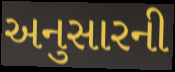
અનુસારની